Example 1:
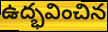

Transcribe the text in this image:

ఉద్భవించిన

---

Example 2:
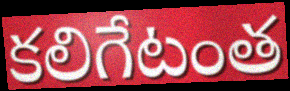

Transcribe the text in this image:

కలిగేటంత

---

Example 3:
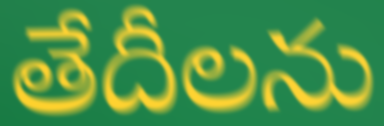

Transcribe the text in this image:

తేదీలను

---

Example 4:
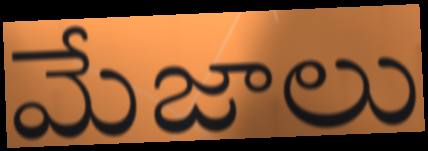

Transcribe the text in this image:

మేజాలు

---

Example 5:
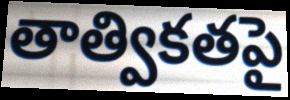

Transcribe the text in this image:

తాత్వికతపై